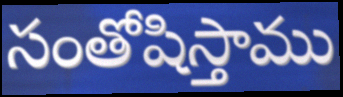
సంతోషిస్తాము